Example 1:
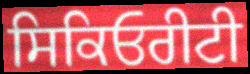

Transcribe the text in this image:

ਸਿਕਿਓਰੀਟੀ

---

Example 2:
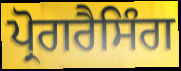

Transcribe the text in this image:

ਪ੍ਰੋਗਰੈਸਿੰਗ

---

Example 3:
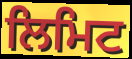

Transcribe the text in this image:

ਲਿਮਿਟ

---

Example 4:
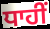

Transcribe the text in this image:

ਧਾਹੀਂ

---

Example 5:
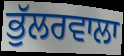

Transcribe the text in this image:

ਭੁੱਲਰਵਾਲਾ